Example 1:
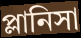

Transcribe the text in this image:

প্লানিসা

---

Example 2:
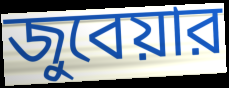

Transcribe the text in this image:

জুবেয়ার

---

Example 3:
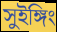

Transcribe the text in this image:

সুইঙ্গিং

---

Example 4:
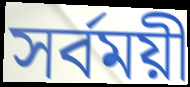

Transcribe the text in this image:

সর্বময়ী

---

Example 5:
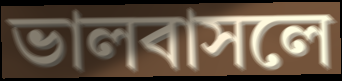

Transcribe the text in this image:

ভালবাসলে